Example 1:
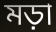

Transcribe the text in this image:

মড়া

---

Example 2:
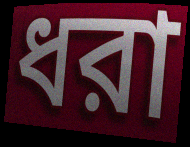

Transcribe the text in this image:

ধরা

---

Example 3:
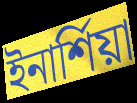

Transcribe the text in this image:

ইনার্শিয়া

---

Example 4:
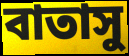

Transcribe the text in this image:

বাতাসু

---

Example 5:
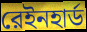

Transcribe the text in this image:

রেইনহার্ড